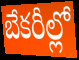
బేకరీల్లో